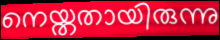
നെയ്തതായിരുന്നു